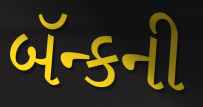
બૅન્કની